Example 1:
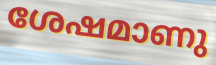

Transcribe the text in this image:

ശേഷമാണു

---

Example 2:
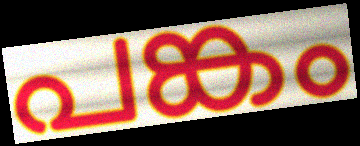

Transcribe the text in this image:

പങ്കം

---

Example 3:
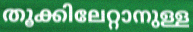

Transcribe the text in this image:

തൂക്കിലേറ്റാനുള്ള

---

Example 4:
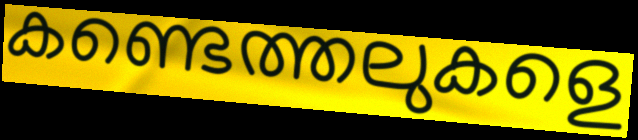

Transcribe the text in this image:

കണ്ടെത്തലുകളെ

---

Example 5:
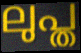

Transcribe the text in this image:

ലുപ്ത